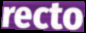
recto